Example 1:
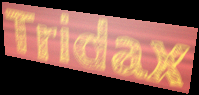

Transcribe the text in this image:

Tridax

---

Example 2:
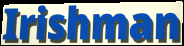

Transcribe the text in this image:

Irishman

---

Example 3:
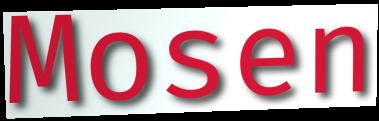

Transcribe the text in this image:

Mosen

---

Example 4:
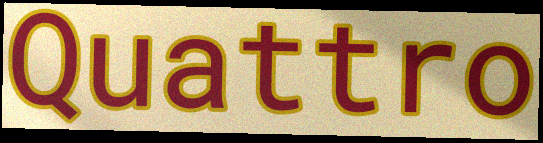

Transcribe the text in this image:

Quattro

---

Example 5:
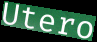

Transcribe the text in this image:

Utero